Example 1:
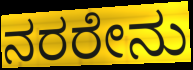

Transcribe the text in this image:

ನರರೇನು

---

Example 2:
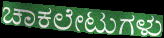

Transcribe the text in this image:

ಚಾಕಲೇಟುಗಳು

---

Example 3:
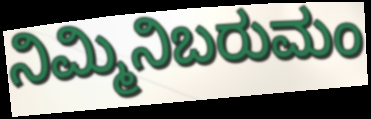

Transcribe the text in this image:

ನಿಮ್ಮಿನಿಬರುಮಂ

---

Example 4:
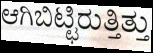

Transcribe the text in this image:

ಆಗಿಬಿಟ್ಟಿರುತ್ತಿತ್ತು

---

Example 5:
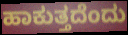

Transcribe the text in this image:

ಹಾಕುತ್ತದೆಂದು